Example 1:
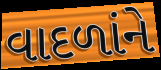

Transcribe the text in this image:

વાદળાંને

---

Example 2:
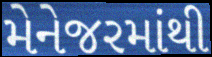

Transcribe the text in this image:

મેનેજરમાંથી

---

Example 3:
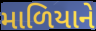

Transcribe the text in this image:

માળિયાને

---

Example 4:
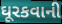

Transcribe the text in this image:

ઘૂરકવાની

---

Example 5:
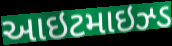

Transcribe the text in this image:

આઇટમાઇઝ્ડ